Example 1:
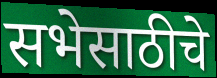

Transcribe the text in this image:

सभेसाठीचे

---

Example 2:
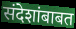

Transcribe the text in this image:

संदेशांबाबत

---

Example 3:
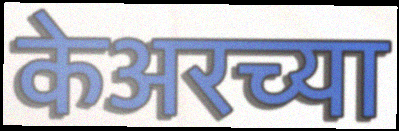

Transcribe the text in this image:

केअरच्या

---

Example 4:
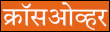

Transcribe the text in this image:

क्रॉसओव्हर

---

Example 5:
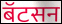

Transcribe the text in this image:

बॅटसन